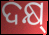
ଦକ୍ଷ୍